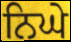
ਨਿਘੇ